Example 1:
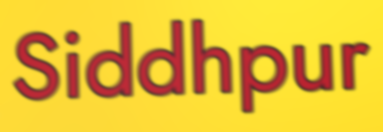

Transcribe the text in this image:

Siddhpur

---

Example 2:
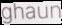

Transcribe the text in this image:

ghaun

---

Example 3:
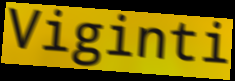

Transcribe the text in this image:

Viginti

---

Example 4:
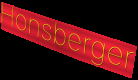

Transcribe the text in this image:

Honsberger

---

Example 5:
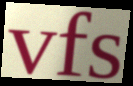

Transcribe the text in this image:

vfs